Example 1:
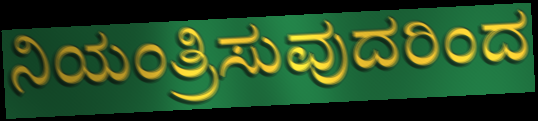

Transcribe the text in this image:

ನಿಯಂತ್ರಿಸುವುದರಿಂದ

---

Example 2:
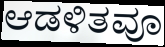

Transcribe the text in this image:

ಆಡಳಿತವೂ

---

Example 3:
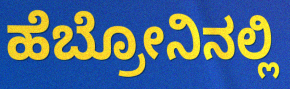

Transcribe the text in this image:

ಹೆಬ್ರೋನಿನಲ್ಲಿ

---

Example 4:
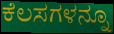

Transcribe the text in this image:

ಕೆಲಸಗಳನ್ನೂ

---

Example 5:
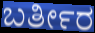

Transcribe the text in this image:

ಬರ್ತೀರ